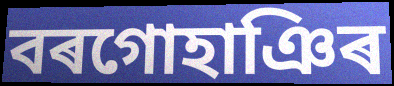
বৰগোহাঞিৰ